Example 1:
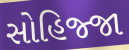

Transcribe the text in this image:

સોહિજ્જા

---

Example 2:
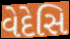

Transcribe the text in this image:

વેદેસિ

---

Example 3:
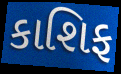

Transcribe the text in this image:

કાશિફ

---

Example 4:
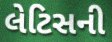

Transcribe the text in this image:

લેટિસની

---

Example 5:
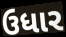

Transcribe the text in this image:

ઉધાર